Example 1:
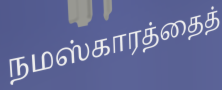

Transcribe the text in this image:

நமஸ்காரத்தைத்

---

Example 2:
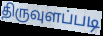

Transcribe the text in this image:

திருவுளப்படி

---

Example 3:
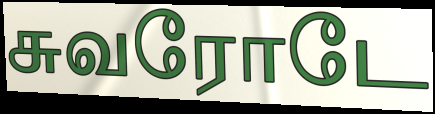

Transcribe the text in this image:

சுவரோடே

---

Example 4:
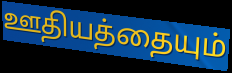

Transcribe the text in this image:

ஊதியத்தையும்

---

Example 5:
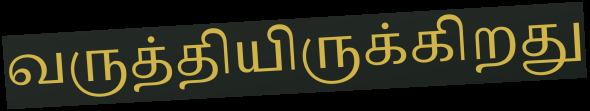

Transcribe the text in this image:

வருத்தியிருக்கிறது